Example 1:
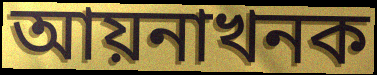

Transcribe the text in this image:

আয়নাখনক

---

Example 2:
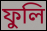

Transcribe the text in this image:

ফুলি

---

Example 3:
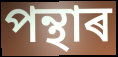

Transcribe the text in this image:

পন্থাৰ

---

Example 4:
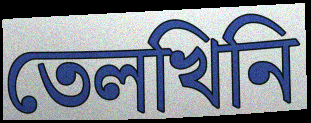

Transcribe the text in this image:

তেলখিনি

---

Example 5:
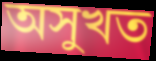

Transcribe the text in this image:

অসুখত